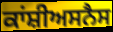
ਕਾਂਸ਼ੀਅਸਨੈਸ